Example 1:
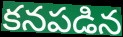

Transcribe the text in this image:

కనపడిన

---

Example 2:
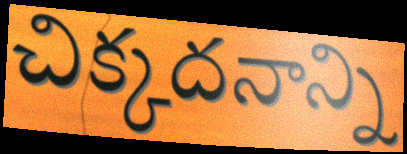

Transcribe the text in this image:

చిక్కదనాన్ని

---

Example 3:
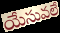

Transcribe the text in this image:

యేసువలే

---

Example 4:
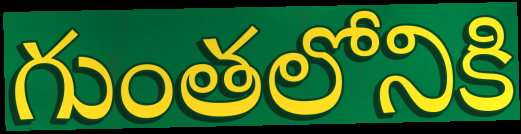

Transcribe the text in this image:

గుంతలోనికి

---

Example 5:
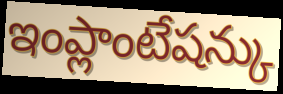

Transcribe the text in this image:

ఇంప్లాంటేషన్కు